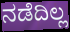
ನಡೆದಿಲ್ಲ